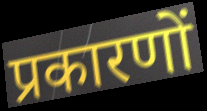
प्रकारणों